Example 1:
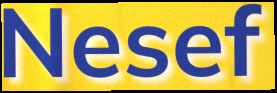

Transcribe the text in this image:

Nesef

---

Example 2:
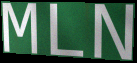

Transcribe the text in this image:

MLN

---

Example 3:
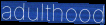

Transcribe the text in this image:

adulthood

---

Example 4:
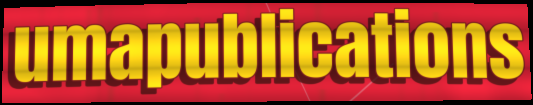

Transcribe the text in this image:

umapublications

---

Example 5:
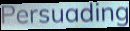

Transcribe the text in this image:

Persuading